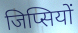
जिप्सियों